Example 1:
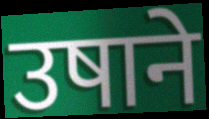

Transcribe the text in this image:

उषाने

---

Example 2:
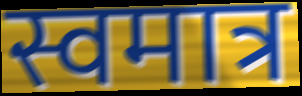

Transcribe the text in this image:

स्वमात्र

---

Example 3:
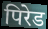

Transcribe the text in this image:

पिरेड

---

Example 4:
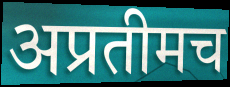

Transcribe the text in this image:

अप्रतीमच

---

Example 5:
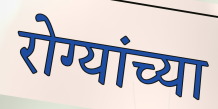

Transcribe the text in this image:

रोग्यांच्या